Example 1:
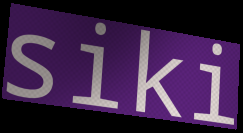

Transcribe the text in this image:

siki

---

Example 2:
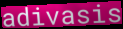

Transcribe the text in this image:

adivasis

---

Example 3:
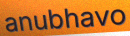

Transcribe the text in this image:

anubhavo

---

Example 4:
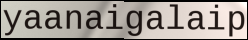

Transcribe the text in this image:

yaanaigalaip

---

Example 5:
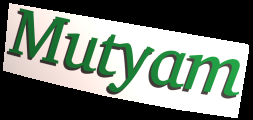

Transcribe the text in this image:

Mutyam